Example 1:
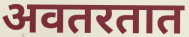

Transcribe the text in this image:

अवतरतात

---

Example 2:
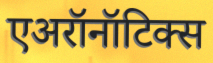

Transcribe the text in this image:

एअरॉनॉटिक्स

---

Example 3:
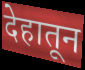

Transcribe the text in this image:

देहातून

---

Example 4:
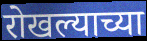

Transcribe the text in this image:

रोखल्याच्या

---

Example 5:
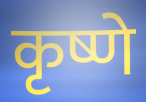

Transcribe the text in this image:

कृष्णे